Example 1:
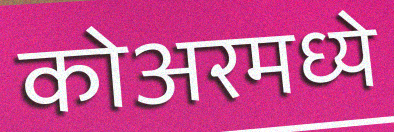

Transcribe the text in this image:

कोअरमध्ये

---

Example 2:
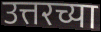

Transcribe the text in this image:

उत्तरच्या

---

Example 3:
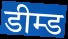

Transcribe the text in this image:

डीम्ड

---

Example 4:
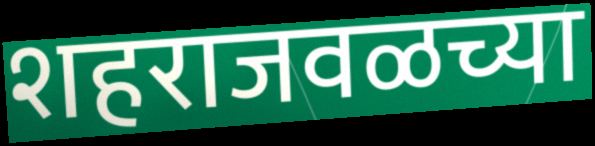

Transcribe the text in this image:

शहराजवळच्या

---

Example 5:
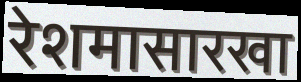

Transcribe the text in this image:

रेशमासारखा